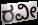
ರವೀ